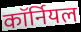
कॉर्नियल